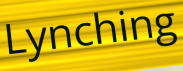
Lynching